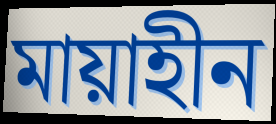
মায়াহীন